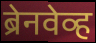
ब्रेनवेव्ह